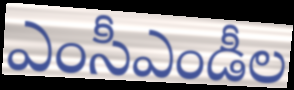
ఎంసీఎండీల